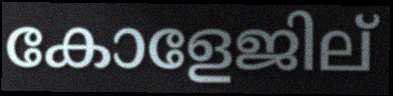
കോളേജില്